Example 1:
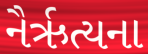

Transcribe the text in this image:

નૈર્ઋત્યના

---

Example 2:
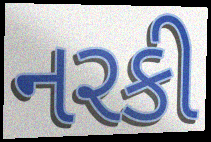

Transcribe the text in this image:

નરકી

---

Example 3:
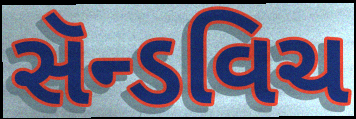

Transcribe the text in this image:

સૅન્ડવિચ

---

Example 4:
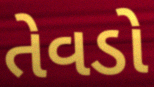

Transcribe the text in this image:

તેવડો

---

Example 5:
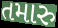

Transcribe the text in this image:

તમારુ